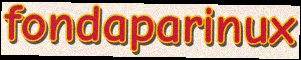
fondaparinux